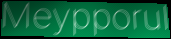
Meypporul